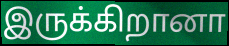
இருக்கிறானா